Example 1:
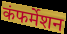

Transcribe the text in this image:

कंफर्मेशन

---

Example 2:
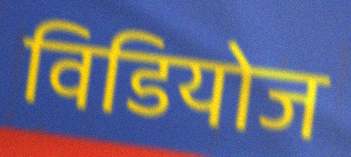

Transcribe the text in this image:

विडियोज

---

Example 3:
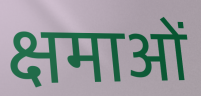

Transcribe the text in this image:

क्षमाओं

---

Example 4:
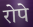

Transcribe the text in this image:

रोपे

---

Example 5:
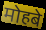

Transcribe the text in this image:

मोहबे